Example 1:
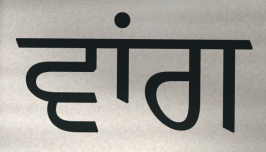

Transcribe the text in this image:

ਵਾਂਗ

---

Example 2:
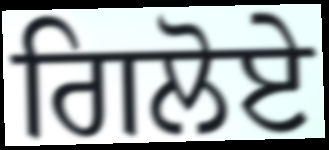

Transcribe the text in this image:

ਗਿਲੋਏ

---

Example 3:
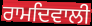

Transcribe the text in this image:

ਰਾਮਦਿਵਾਲੀ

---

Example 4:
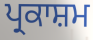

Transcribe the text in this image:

ਪ੍ਰਕਾਸ਼ਮ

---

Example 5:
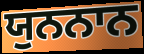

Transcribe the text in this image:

ਯੁਨਨਾਨ